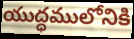
యుద్ధములోనికి